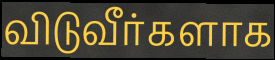
விடுவீர்களாக